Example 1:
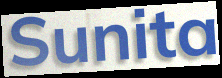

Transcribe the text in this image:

Sunita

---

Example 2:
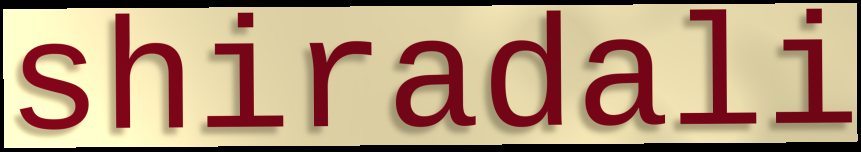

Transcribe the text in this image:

shiradali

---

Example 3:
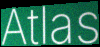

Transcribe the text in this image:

Atlas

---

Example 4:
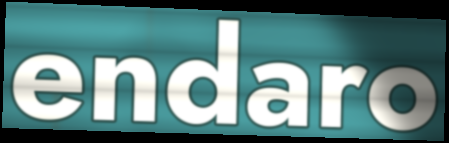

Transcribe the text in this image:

endaro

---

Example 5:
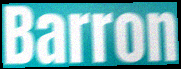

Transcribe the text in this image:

Barron